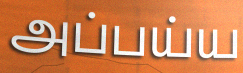
அப்பய்ய